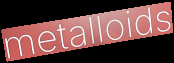
metalloids